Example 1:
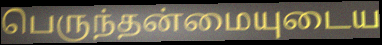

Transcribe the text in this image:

பெருந்தன்மையுடைய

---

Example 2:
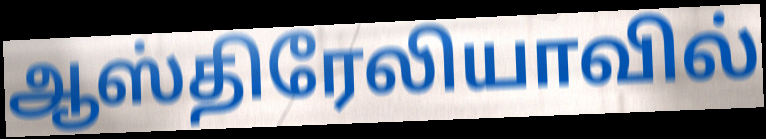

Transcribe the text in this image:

ஆஸ்திரேலியாவில்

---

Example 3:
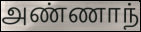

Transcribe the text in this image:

அண்ணாந்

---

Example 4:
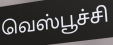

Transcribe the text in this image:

வெஸ்பூச்சி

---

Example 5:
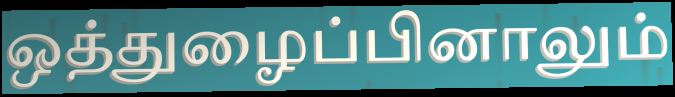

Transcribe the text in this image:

ஒத்துழைப்பினாலும்